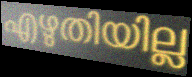
എഴുതിയില്ല